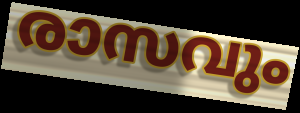
രാസവും